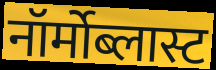
नॉर्मोब्लास्ट